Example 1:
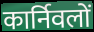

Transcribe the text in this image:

कार्निवलों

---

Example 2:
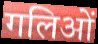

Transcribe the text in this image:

गलिओं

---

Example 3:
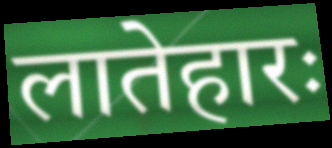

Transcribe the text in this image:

लातेहारः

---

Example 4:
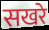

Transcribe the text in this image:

सखरे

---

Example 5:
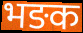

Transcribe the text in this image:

भङक